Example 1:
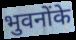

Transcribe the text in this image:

भुवनोंके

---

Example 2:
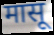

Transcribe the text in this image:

मासू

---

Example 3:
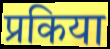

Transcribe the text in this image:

प्रकिया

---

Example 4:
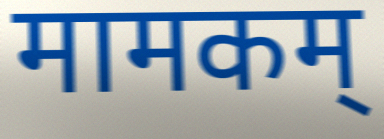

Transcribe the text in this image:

मामकम्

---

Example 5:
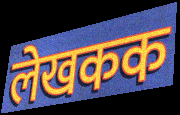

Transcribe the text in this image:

लेखकक